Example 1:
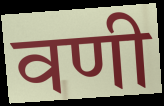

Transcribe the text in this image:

वणी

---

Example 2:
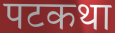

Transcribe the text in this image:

पटकथा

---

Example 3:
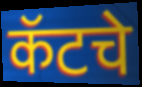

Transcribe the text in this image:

कॅटचे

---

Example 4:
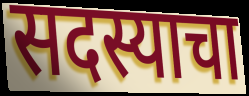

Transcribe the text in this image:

सदस्याचा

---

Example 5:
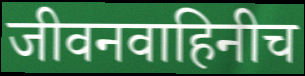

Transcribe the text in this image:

जीवनवाहिनीच